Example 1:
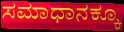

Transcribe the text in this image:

ಸಮಾಧಾನಕ್ಕೂ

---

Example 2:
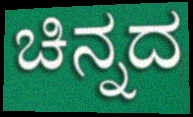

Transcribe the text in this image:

ಚಿನ್ನದ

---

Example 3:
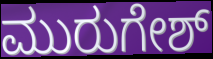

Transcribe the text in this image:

ಮುರುಗೇಶ್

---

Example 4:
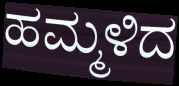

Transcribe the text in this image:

ಹಮ್ಮಳಿದ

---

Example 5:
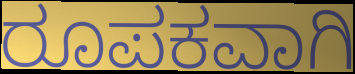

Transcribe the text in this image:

ರೂಪಕವಾಗಿ